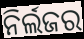
ନିର୍ଲଜର